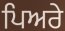
ਪਿਅਰੇ